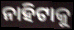
ନାହିଟାକୁ